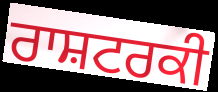
ਰਾਸ਼ਟਰਕੀ